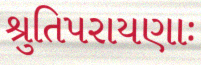
શ્રુતિપરાયણાઃ